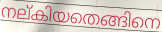
നല്കിയതെങ്ങിനെ